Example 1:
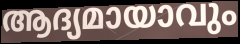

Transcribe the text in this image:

ആദ്യമായാവും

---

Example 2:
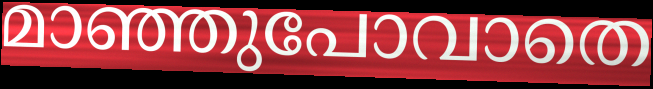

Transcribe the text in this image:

മാഞ്ഞുപോവാതെ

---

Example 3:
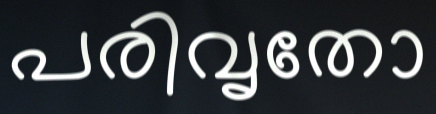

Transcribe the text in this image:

പരിവൃതോ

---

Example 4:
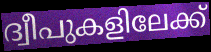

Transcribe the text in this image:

ദ്വീപുകളിലേക്ക്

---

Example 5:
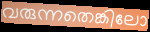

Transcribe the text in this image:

വരുന്നതെങ്കിലോ